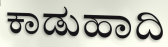
ಕಾಡುಹಾದಿ